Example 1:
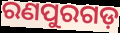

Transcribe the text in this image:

ରଣପୁରଗଡ଼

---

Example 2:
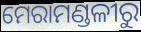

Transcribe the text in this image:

ମେରାମଣ୍ଡଳୀରୁ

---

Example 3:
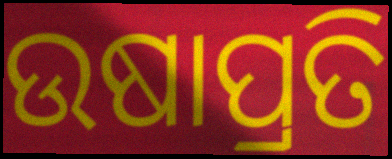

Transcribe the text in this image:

ଉଷାପ୍ରତି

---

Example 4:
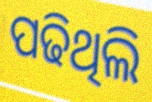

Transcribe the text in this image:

ପଢିଥିଲି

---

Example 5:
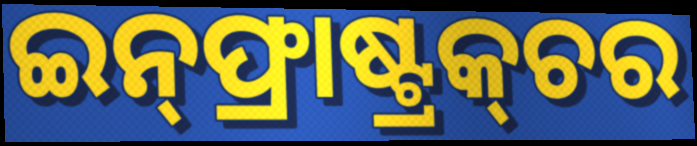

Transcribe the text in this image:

ଇନ୍‌ଫ୍ରାଷ୍ଟ୍ରକ୍‌ଚର